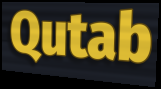
Qutab